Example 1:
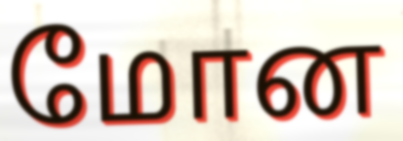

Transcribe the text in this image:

மோன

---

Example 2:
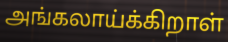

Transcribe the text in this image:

அங்கலாய்க்கிறாள்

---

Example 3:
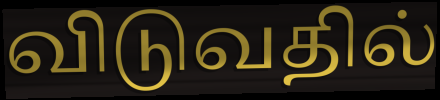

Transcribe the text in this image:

விடுவதில்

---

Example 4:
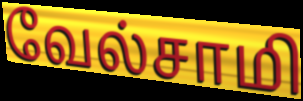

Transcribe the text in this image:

வேல்சாமி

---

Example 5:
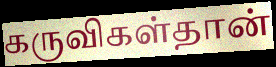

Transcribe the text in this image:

கருவிகள்தான்